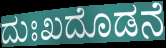
ದುಃಖದೊಡನೆ